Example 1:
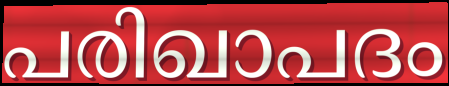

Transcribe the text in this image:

പരിഖാപദം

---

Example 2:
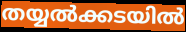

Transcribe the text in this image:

തയ്യൽക്കടയിൽ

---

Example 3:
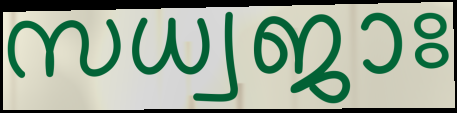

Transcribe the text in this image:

സധ്വജാഃ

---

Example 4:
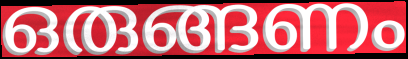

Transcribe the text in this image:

ഒരുങ്ങണം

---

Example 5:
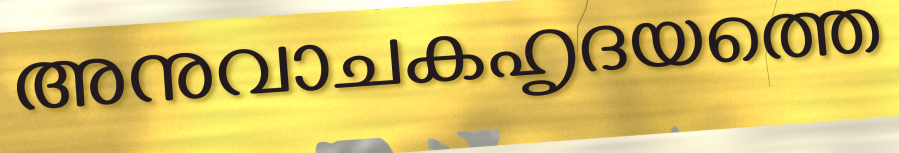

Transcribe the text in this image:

അനുവാചകഹൃദയത്തെ